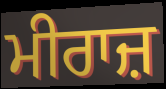
ਮੀਰਾਜ਼